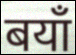
बयाँ